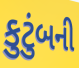
કુટુંબની